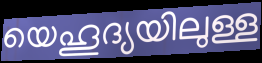
യെഹൂദ്യയിലുള്ള